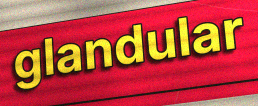
glandular